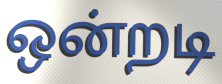
ஒன்றடி